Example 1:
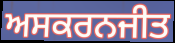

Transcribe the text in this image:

ਅਸਕਰਨਜੀਤ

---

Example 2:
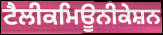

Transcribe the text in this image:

ਟੈਲੀਕਮਿਊਨੀਕੇਸ਼ਨ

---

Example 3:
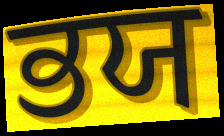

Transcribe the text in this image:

ਭਯ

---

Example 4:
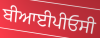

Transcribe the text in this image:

ਬੀਆਈਪੀਓਸੀ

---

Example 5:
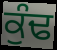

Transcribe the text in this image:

ਕੁੰਢ